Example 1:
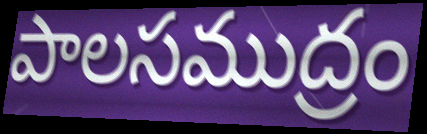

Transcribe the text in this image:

పాలసముద్రం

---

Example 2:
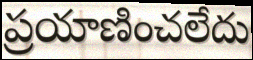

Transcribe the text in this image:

ప్రయాణించలేదు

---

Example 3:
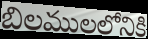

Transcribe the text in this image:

బిలములలోనికి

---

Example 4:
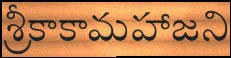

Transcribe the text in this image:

శ్రీకాకామహాజని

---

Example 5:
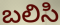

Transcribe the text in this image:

బలిసి